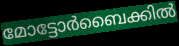
മോട്ടോർബൈക്കിൽ